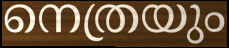
നെത്രയും